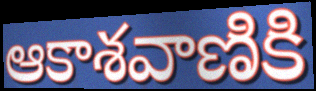
ఆకాశవాణికి